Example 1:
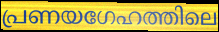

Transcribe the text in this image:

പ്രണയഗേഹത്തിലെ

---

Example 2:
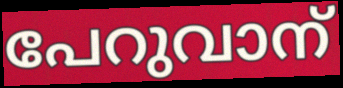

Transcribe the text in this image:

പേറുവാന്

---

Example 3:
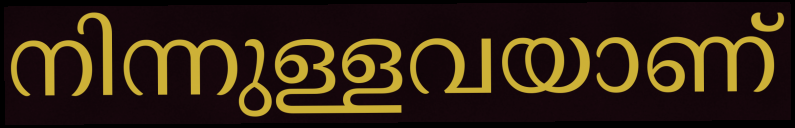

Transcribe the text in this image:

നിന്നുള്ളവയാണ്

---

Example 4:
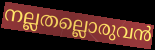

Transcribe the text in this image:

നല്ലതല്ലൊരുവൻ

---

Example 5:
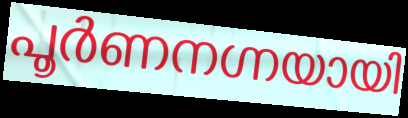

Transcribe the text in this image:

പൂർണനഗ്നയായി